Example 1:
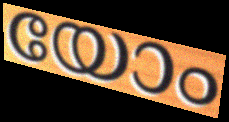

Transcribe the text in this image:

യോം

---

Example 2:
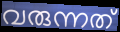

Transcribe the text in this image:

വരുന്നത്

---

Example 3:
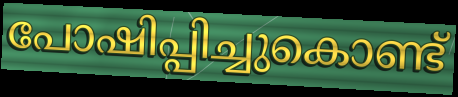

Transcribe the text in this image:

പോഷിപ്പിച്ചുകൊണ്ട്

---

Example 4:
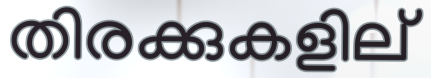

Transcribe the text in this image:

തിരക്കുകളില്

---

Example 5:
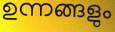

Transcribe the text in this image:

ഉന്നങ്ങളും